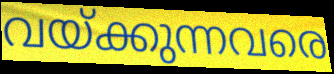
വയ്ക്കുന്നവരെ